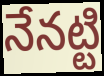
నేనట్టి